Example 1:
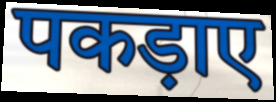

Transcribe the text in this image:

पकड़ाए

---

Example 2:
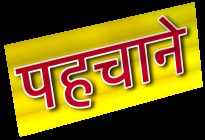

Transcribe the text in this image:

पहचाने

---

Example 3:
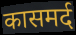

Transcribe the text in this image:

कासमर्द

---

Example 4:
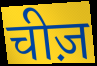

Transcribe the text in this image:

चीज़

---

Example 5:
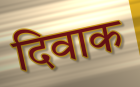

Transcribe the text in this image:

दिवाक